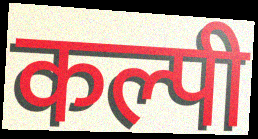
कल्पी